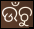
ଉଁଚୁ